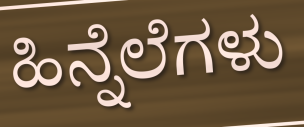
ಹಿನ್ನೆಲೆಗಳು